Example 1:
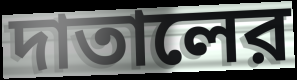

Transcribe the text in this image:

দাতালের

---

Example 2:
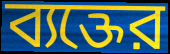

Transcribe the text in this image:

ব্যক্তের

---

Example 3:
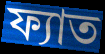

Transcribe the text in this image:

ফ্যাত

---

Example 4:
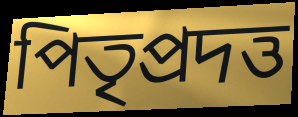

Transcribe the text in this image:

পিতৃপ্রদত্ত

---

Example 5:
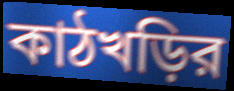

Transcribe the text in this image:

কাঠখড়ির